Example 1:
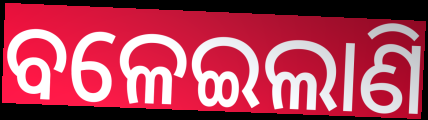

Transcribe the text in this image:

ବଳେଇଲାଣି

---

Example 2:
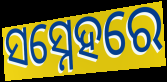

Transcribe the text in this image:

ସସ୍ନେହରେ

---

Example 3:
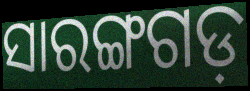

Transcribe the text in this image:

ସାରଙ୍ଗଗଡ଼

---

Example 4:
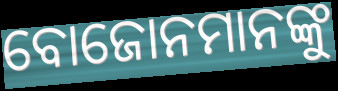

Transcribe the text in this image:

ବୋଜୋନମାନଙ୍କୁ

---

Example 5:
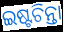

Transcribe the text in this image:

ଇଷ୍ଟଚିନ୍ତା